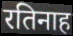
रतिनाह